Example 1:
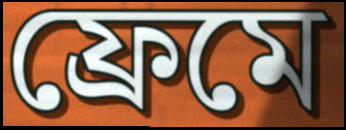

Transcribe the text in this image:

ফ্রেমে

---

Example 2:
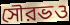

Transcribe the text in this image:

সৌরভও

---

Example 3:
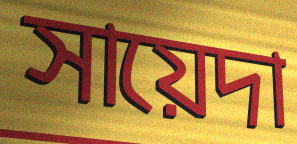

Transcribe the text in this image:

সায়েদা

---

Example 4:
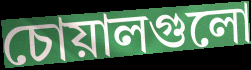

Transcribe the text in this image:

চোয়ালগুলো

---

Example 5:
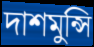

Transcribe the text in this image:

দাশমুন্সি